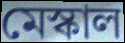
মেস্কাল